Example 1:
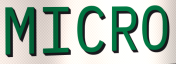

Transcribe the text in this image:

MICRO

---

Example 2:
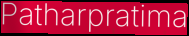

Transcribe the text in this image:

Patharpratima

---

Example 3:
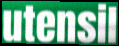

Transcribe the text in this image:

utensil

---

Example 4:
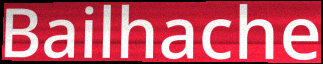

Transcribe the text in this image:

Bailhache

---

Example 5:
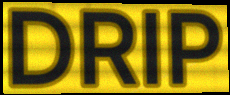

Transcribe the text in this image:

DRIP